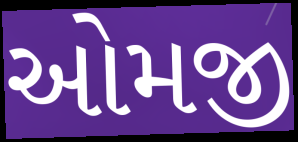
ઓમજી